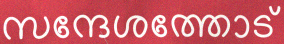
സന്ദേശത്തോട്